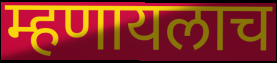
म्हणायलाच